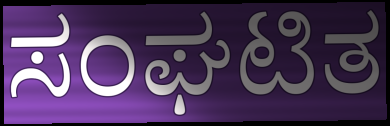
ಸಂಘಟಿತ